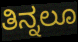
ತಿನ್ನಲೂ